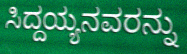
ಸಿದ್ದಯ್ಯನವರನ್ನು